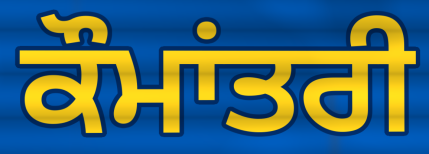
ਕੌਮਾਂਤਰੀ